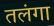
तलंगा